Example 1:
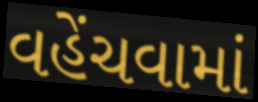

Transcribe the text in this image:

વહેંચવામાં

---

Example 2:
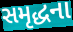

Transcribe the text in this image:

સમૃદ્ધના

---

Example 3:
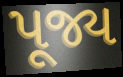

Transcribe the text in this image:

પૂજ્ય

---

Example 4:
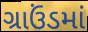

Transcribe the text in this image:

ગ્રાઉંડમાં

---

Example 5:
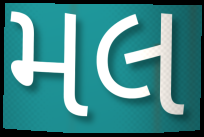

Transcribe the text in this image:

મલ